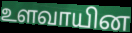
உளவாயின